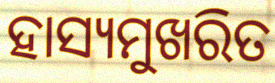
ହାସ୍ୟମୁଖରିତ